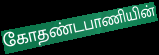
கோதண்டபாணியின்